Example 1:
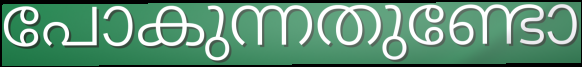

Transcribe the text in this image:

പോകുന്നതുണ്ടോ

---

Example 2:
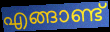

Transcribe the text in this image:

എങ്ങാണ്ട്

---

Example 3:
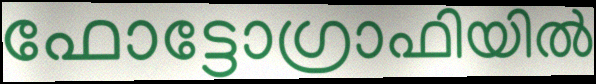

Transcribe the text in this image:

ഫോട്ടോഗ്രാഫിയിൽ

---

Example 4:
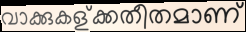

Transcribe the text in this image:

വാക്കുകള്ക്കതീതമാണ്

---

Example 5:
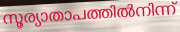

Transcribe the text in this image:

സൂര്യാതാപത്തിൽനിന്ന്